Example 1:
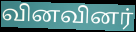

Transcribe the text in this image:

வினவினர்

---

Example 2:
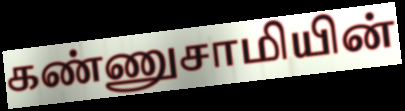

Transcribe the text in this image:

கண்ணுசாமியின்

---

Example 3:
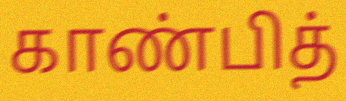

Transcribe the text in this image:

காண்பித்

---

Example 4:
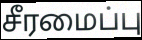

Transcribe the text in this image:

சீரமைப்பு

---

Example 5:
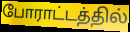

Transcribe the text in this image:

போராட்டத்தில்